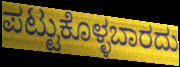
ಪಟ್ಟುಕೊಳ್ಳಬಾರದು